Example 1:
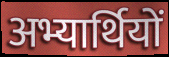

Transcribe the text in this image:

अभ्‍यार्थियों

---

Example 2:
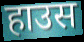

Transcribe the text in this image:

हाउस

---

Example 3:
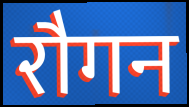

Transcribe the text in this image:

रौगन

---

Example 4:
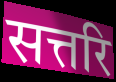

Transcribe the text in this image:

सत्तरि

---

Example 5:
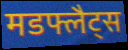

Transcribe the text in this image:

मडफ्लैट्स